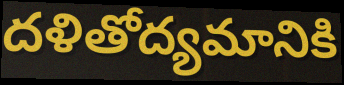
దళితోద్యమానికి